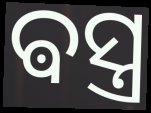
ଵସ୍ତ୍ର